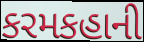
કરમકહાની